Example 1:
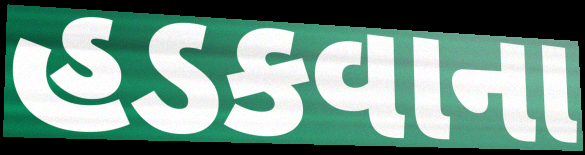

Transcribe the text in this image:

હડકવાના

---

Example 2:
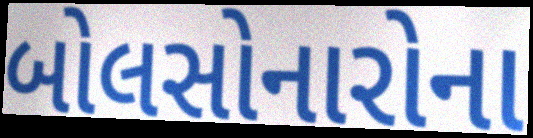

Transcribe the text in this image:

બોલસોનારોના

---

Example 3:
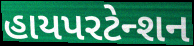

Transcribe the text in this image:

હાયપરટેન્શન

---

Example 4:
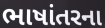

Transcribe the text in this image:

ભાષાંતરના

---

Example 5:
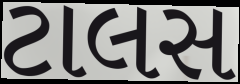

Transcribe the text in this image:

ટાલસ